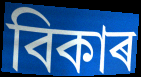
বিকাৰ